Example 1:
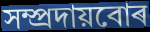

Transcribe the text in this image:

সম্প্ৰদায়বোৰ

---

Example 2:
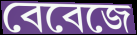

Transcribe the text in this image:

বেবেজে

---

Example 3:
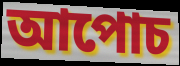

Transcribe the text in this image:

আপোচ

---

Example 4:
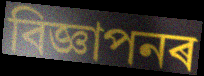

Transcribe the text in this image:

বিজ্ঞাপনৰ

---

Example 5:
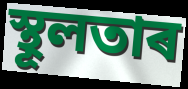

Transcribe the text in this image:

স্থূলতাৰ